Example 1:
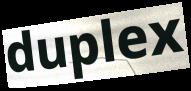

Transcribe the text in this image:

duplex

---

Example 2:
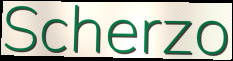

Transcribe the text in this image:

Scherzo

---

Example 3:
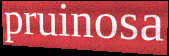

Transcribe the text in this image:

pruinosa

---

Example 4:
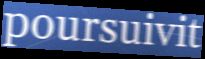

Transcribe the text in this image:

poursuivit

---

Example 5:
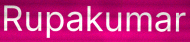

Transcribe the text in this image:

Rupakumar